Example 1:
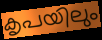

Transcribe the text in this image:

കൃപയിലും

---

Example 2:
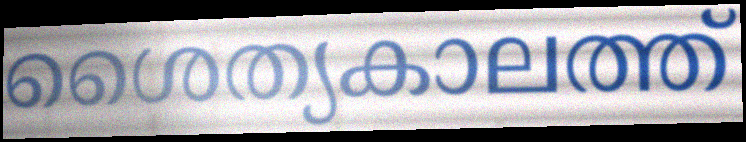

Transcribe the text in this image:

ശൈത്യകാലത്ത്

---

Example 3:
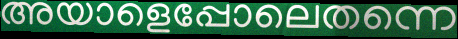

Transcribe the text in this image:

അയാളെപ്പോലെതന്നെ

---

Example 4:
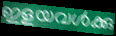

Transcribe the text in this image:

ഇളയവൾക്കു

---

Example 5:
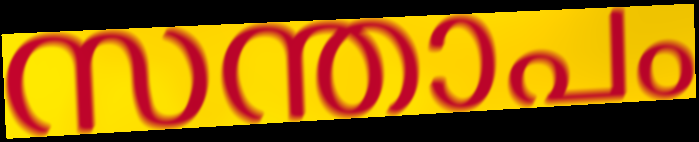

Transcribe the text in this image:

സന്താപം